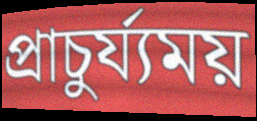
প্ৰাচুৰ্য্যময়